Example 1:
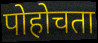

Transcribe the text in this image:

पोहोचता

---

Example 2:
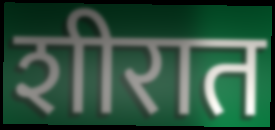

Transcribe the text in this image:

शीरात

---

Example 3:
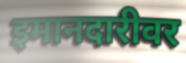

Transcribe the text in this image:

इमानदारीवर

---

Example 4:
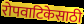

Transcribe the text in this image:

रोपवाटिकेसाठी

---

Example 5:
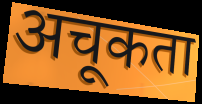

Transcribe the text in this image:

अचूकता